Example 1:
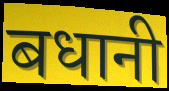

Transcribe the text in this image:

बधानी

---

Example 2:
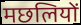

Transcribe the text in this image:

मछलियों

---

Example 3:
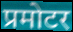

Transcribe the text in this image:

प्रमोटर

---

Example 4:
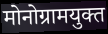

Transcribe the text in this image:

मोनोग्रामयुक्त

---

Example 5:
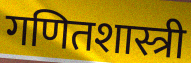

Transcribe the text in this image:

गणितशास्त्री